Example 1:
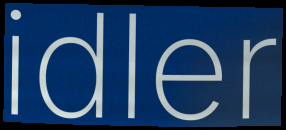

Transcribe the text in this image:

idler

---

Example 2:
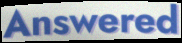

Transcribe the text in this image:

Answered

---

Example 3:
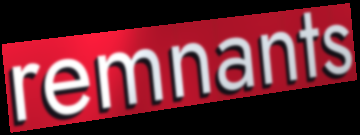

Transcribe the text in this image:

remnants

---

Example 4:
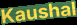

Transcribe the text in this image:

Kaushal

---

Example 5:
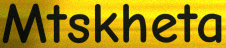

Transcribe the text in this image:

Mtskheta